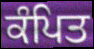
ਕੰਪਿਤ